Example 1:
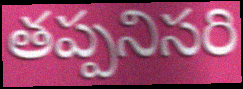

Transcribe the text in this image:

తప్పనిసరి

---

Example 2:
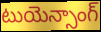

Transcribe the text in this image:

టుయెన్సాంగ్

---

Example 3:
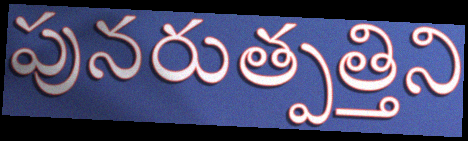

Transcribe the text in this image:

పునరుత్పత్తిని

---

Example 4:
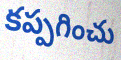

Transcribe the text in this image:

కప్పగించు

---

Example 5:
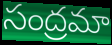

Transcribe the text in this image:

సంద్రమా